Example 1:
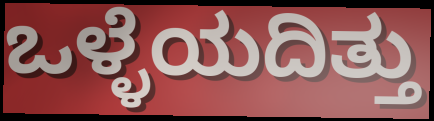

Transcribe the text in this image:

ಒಳ್ಳೆಯದಿತ್ತು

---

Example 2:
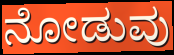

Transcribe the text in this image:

ನೋಡುವು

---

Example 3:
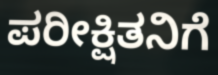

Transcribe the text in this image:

ಪರೀಕ್ಷಿತನಿಗೆ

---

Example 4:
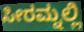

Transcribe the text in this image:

ಸೀರಮ್ನಲ್ಲಿ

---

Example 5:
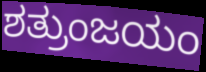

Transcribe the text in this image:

ಶತ್ರುಂಜಯಂ